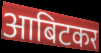
आबिटकर